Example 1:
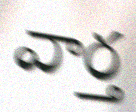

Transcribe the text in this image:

వార్త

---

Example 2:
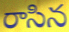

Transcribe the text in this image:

రాసిన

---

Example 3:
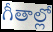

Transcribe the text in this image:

గీతాల్లో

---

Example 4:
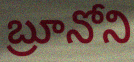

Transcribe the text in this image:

బ్రూనోని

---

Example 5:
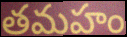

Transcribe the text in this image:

తమహం